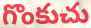
గొంకుచు